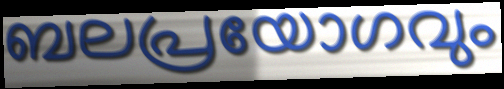
ബലപ്രയോഗവും